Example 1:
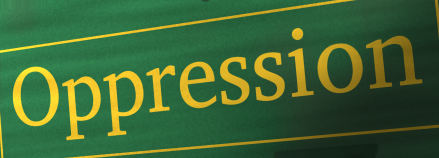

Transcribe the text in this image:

Oppression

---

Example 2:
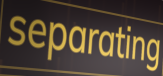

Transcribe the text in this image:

separating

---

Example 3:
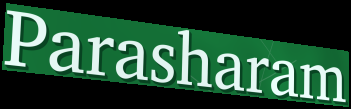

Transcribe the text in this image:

Parasharam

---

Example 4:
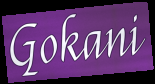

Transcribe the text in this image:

Gokani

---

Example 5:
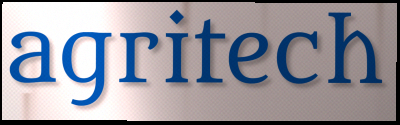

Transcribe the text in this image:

agritech